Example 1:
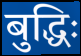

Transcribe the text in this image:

बुद्धिः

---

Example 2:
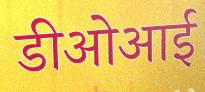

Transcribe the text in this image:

डीओआई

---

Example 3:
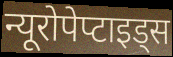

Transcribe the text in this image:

न्यूरोपेप्टाइड्स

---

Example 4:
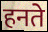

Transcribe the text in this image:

हनते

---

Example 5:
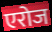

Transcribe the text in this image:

एरोज